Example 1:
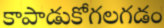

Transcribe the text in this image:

కాపాడుకోగలగడం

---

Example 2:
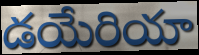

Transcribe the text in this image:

డయేరియా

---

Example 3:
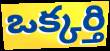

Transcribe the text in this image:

ఒక్కర్తి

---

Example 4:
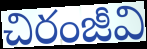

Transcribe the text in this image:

చిరంజీవి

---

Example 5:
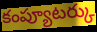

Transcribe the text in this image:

కంప్యూటర్కు